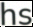
hs